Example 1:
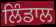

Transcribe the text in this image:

ਲਿੰਡਾਲ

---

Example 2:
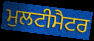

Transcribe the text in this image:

ਮੁਲਟੀਮੈਟਰ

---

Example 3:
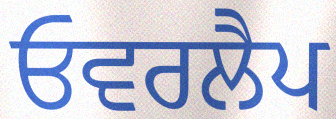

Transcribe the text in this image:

ਓਵਰਲੈਪ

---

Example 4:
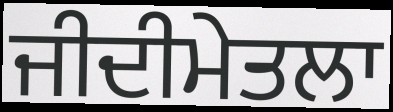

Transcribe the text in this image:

ਜੀਦੀਮੇਤਲਾ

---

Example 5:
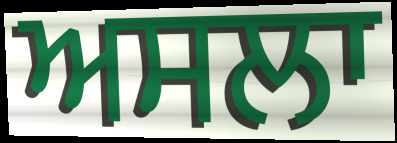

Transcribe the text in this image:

ਅਸਲਾ